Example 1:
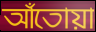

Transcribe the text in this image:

আঁতোয়া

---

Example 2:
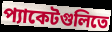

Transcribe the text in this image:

প্যাকেটগুলিতে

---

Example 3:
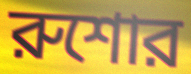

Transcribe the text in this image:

রুশোর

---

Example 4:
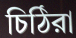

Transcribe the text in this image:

চিঠিরা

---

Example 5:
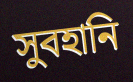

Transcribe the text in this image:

সুবহানি